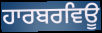
ਹਾਰਬਰਵਿਊ